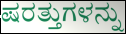
ಷರತ್ತುಗಳನ್ನು